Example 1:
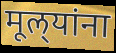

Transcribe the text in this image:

मूल्यांना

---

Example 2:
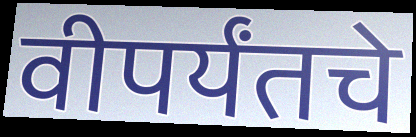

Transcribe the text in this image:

वीपर्यंतचे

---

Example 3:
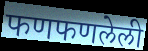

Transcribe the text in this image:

फणफणलेली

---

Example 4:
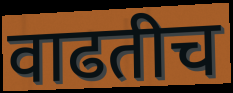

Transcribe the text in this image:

वाढतीच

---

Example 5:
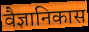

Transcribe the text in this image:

वैज्ञानिकास